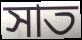
সাত